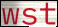
wst